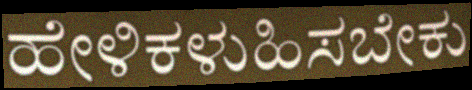
ಹೇಳಿಕಳುಹಿಸಬೇಕು